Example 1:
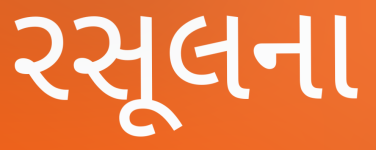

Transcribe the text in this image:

રસૂલના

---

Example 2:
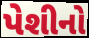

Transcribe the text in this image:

પેશીનો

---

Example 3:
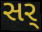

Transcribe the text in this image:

સર્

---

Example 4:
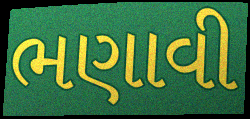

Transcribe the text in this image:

ભણાવી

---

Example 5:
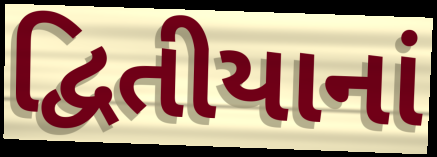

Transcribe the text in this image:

દ્વિતીયાનાં